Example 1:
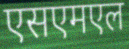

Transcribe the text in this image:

एसएमएल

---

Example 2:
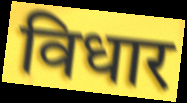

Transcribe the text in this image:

विधार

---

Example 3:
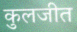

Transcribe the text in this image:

कुलजीत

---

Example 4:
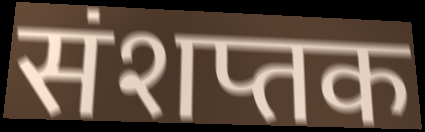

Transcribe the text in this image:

संशप्तक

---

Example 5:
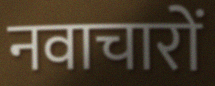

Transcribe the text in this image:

नवाचारों